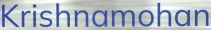
Krishnamohan